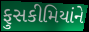
ફુસકીમિયાંને